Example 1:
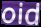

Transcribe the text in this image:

oid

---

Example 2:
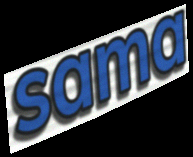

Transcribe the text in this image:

sama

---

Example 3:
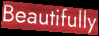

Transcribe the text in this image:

Beautifully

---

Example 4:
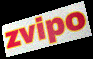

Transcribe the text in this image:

zvipo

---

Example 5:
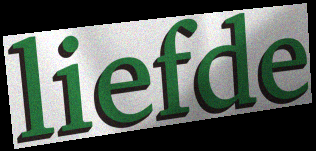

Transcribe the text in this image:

liefde